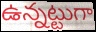
ఉన్నట్టుగా